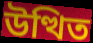
উত্থিত